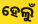
ହେଲୁଁ